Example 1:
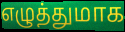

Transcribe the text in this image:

எழுத்துமாக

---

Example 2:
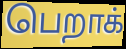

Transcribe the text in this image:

பெறாக்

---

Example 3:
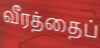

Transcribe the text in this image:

வீரத்தைப்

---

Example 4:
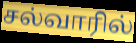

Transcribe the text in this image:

சல்வாரில்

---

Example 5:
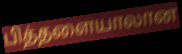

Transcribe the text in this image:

பித்தளையாலான